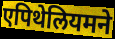
एपिथेलियमने